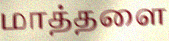
மாத்தளை